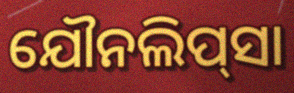
ଯୌନଲିପ୍‌ସା